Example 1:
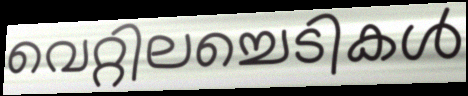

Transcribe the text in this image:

വെറ്റിലച്ചെടികൾ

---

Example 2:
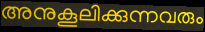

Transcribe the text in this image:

അനുകൂലിക്കുന്നവരും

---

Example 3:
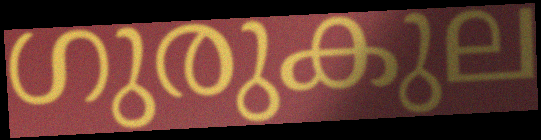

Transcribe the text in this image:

ഗുരുകുല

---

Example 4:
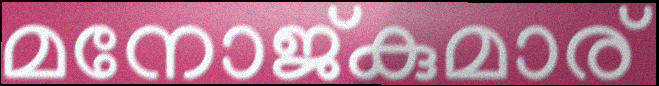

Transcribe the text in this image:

മനോജ്കുമാര്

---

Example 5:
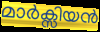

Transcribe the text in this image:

മാർക്സിയൻ